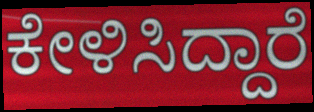
ಕೇಳಿಸಿದ್ದಾರೆ